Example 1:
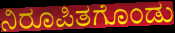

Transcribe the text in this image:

ನಿರೂಪಿತಗೊಂಡು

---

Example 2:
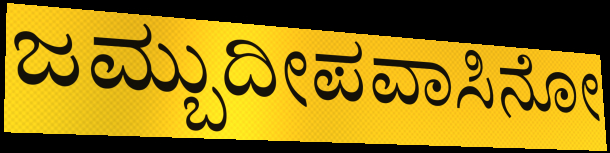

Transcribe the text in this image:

ಜಮ್ಬುದೀಪವಾಸಿನೋ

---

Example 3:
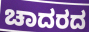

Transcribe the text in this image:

ಚಾದರದ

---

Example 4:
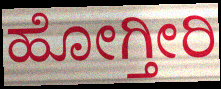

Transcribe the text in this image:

ಹೋಗ್ತೀರಿ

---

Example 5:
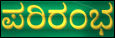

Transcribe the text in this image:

ಪರಿರಂಭ